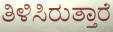
ತಿಳಿಸಿರುತ್ತಾರೆ